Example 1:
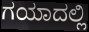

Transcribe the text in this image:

ಗಯಾದಲ್ಲಿ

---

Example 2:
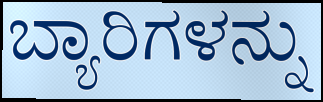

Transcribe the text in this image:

ಬ್ಯಾರಿಗಳನ್ನು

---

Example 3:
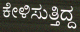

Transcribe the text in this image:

ಕೇಳಿಸುತ್ತಿದ್ದ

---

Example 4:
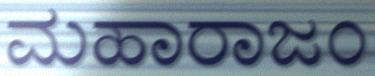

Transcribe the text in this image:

ಮಹಾರಾಜಂ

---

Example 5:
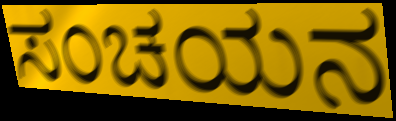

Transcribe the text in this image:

ಸಂಚಯನ